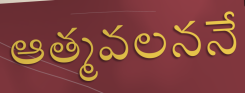
ఆత్మవలననే